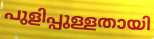
പുളിപ്പുള്ളതായി